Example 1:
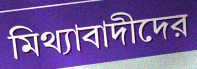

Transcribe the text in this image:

মিথ্যাবাদীদের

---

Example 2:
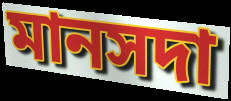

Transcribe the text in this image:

মানসদা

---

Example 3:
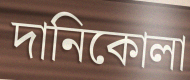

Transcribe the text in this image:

দানিকোলা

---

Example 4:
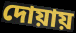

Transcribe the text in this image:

দোয়ায়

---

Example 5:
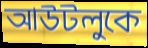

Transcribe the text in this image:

আউটলুকে